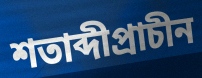
শতাব্দীপ্রাচীন